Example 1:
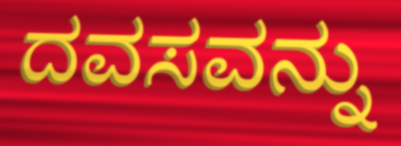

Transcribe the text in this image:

ದವಸವನ್ನು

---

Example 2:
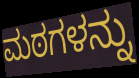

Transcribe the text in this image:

ಮಠಗಳನ್ನು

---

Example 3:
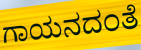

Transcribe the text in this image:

ಗಾಯನದಂತೆ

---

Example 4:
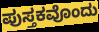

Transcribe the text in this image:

ಪುಸ್ತಕವೊಂದು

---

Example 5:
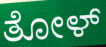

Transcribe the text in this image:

ತೋಳ್